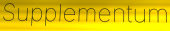
Supplementum